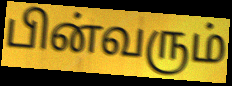
பின்வரும்